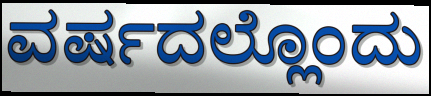
ವರ್ಷದಲ್ಲೊಂದು